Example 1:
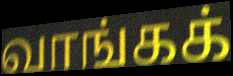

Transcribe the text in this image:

வாங்கக்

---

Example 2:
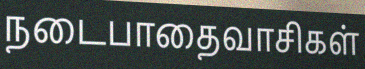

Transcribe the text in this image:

நடைபாதைவாசிகள்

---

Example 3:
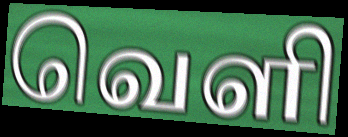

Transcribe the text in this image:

வெளி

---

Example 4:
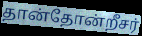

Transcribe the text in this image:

தான்தோன்றீசர்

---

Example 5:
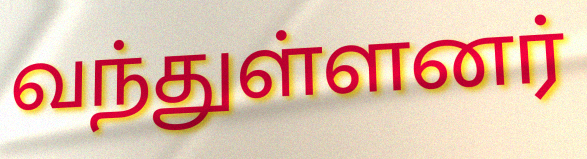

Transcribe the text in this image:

வந்துள்ளனர்